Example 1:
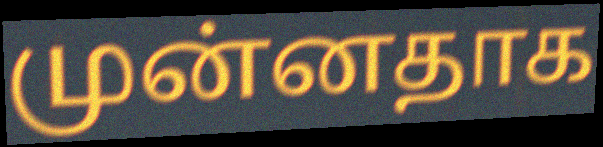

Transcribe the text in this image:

முன்னதாக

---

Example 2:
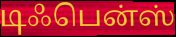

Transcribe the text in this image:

டிஃபென்ஸ்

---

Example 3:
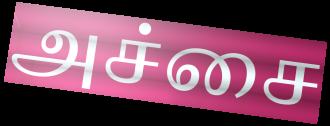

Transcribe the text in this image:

அச்சை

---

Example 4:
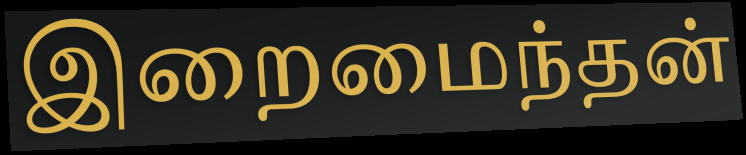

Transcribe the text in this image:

இறைமைந்தன்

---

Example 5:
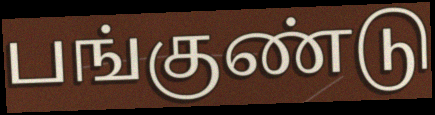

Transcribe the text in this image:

பங்குண்டு